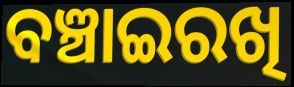
ବଞ୍ଚାଇରଖି